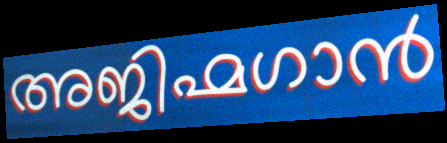
അജിഹ്മഗാൻ